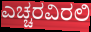
ಎಚ್ಚರವಿರಲಿ